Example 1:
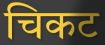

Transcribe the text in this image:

चिकट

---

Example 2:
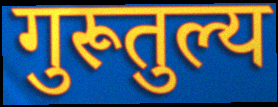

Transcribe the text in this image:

गुरूतुल्य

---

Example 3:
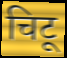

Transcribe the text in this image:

चिटू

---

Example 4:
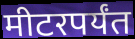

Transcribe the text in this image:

मीटरपर्यंत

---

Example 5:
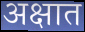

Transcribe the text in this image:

अक्षात